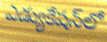
ఎడ్యుకేషన్‌లో